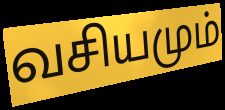
வசியமும்